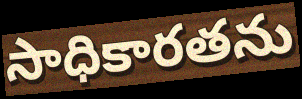
సాధికారతను